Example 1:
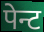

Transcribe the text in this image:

पेन्ट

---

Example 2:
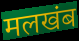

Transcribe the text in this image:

मलखंब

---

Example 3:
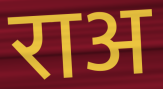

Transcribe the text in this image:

राअ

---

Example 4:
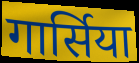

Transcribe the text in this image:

गार्सिया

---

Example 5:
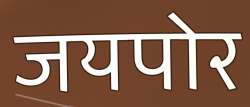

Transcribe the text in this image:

जयपोर